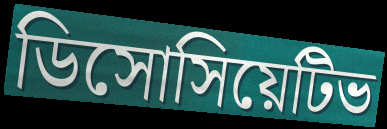
ডিসোসিয়েটিভ